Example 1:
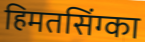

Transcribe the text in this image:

हिमतसिंग्का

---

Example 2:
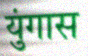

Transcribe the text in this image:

युंगास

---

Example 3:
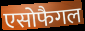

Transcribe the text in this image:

एसोफैगल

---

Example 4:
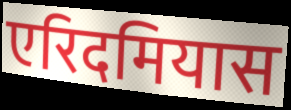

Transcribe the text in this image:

एरिदमियास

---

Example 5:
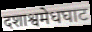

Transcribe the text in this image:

दशाश्वमेधघाट